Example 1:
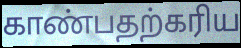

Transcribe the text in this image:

காண்பதற்கரிய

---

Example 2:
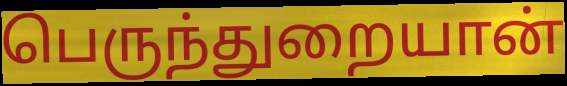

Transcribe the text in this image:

பெருந்துறையான்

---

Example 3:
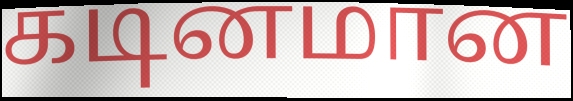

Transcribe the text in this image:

கடினமான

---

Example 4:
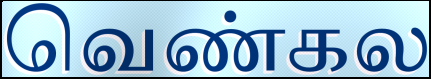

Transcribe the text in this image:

வெண்கல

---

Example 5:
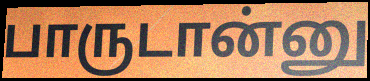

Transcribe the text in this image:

பாருடான்னு